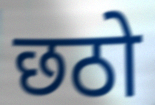
छठो